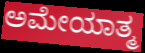
ಅಮೇಯಾತ್ಮ